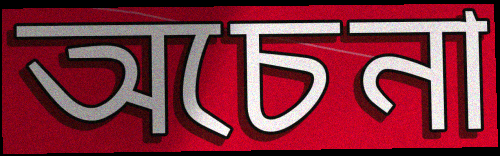
অচেনা